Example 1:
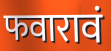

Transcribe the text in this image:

फवारावं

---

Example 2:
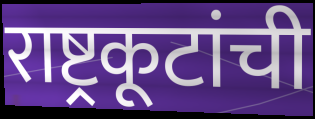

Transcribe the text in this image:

राष्ट्रकूटांची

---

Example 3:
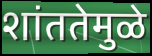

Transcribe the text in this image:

शांततेमुळे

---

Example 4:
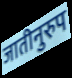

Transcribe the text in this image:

जातीनुरुप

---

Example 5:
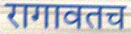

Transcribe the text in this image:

रागावतच